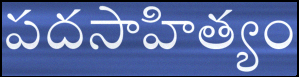
పదసాహిత్యం